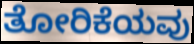
ತೋರಿಕೆಯವು